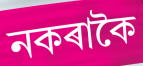
নকৰাকৈ